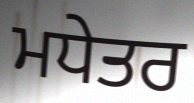
ਮਧੇਤਰ